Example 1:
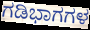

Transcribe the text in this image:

ಗಡಿಭಾಗಗಳ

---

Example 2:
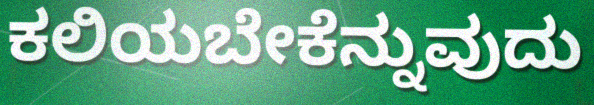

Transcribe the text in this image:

ಕಲಿಯಬೇಕೆನ್ನುವುದು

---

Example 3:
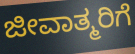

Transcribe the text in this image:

ಜೀವಾತ್ಮರಿಗೆ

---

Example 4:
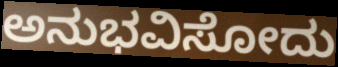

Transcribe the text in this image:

ಅನುಭವಿಸೋದು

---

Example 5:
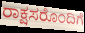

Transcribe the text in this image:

ರಾಕ್ಷಸರೊಂದಿಗೆ